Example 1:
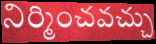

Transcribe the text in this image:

నిర్మించవచ్చు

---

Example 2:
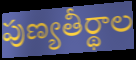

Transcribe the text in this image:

పుణ్యతీర్థాల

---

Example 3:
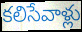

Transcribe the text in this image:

కలిసేవాళ్లు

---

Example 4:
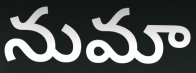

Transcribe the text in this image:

నుమా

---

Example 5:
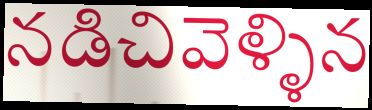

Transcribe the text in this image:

నడిచివెళ్ళిన